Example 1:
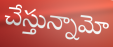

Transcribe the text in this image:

చేస్తున్నామో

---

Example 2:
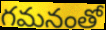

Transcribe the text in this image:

గమనంతో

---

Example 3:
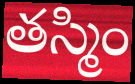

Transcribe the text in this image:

తస్మిం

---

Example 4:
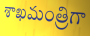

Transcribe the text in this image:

శాఖమంత్రిగా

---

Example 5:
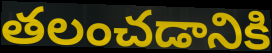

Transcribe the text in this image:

తలంచడానికి